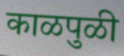
काळपुळी